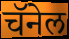
चॅनेल